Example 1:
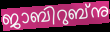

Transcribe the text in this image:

ജാബിറുബ്നു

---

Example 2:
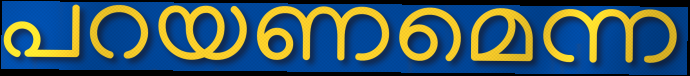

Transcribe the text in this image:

പറയണമെന്ന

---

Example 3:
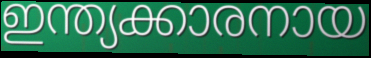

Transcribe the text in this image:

ഇന്ത്യക്കാരനായ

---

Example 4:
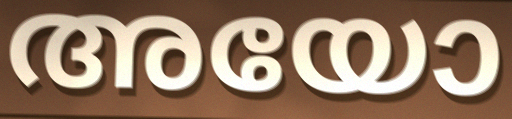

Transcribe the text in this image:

അയോ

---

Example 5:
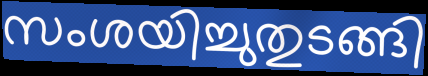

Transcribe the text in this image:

സംശയിച്ചുതുടങ്ങി